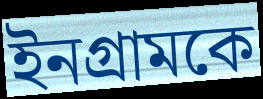
ইনগ্রামকে